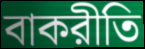
বাকরীতি